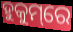
ହୁକୁମ୍‌ରେ